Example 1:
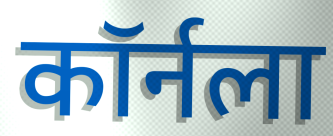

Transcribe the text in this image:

कॉर्नला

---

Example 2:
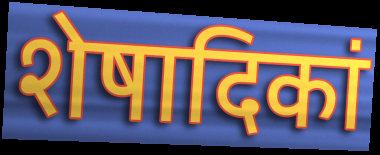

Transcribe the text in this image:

शेषादिकां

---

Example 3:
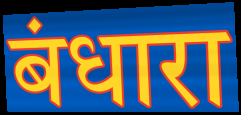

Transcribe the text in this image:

बंधारा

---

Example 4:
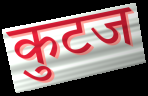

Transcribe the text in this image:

कुटज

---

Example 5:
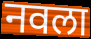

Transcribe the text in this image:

नवला